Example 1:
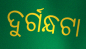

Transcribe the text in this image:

ଦୁର୍ଗନ୍ଧଟା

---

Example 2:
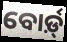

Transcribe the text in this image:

ବୋର୍ଡ଼୍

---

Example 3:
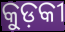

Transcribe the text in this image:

କୁଡ଼କୀ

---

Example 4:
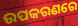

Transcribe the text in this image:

ଉପକରଣରେ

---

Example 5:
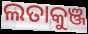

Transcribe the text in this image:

ଲତାକୁଞ୍ଜ